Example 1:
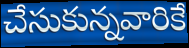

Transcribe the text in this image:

చేసుకున్నవారికే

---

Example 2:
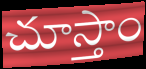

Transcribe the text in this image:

చూస్తాం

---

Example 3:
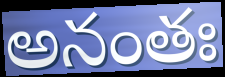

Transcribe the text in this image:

అనంతః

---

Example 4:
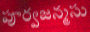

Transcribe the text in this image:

పూర్వజన్మసు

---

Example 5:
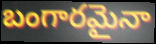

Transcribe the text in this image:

బంగారమైనా